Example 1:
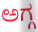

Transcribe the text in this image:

ಅಗ್ಗ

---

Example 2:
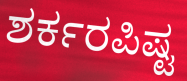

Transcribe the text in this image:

ಶರ್ಕರಪಿಷ್ಟ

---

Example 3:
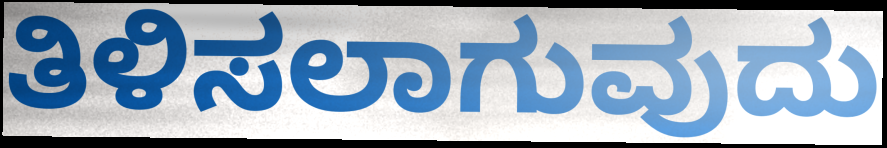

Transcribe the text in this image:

ತಿಳಿಸಲಾಗುವುದು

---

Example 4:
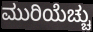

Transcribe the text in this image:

ಮುರಿಯೆಚ್ಚು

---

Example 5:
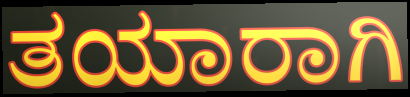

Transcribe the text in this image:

ತಯಾರಾಗಿ